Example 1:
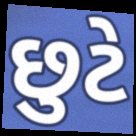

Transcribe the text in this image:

છુટે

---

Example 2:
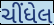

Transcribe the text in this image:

ચીંધેલ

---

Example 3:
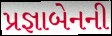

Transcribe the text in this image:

પ્રજ્ઞાબેનની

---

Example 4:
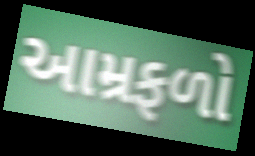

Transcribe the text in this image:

આમ્રફળો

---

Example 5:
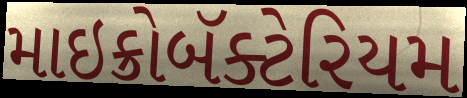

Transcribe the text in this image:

માઇક્રોબૅક્ટેરિયમ